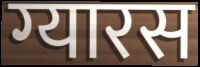
ग्यारस